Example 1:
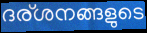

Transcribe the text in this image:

ദര്ശനങ്ങളുടെ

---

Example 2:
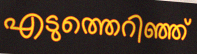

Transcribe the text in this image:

എടുത്തെറിഞ്ഞ്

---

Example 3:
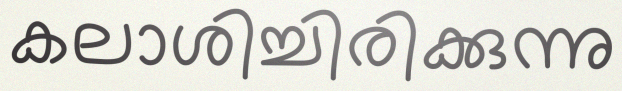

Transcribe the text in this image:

കലാശിച്ചിരിക്കുന്നു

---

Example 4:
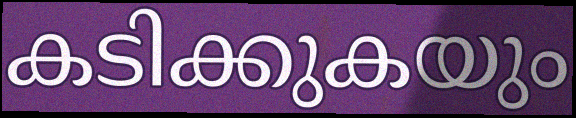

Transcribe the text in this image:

കടിക്കുകയും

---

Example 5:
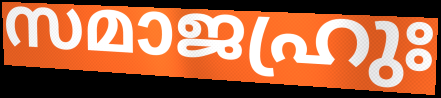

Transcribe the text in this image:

സമാജഹ്രുഃ